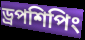
ড্রপশিপিং